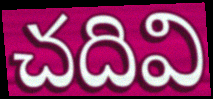
చదివి